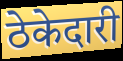
ठेकेदारी